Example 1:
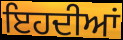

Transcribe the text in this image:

ਇਹਦੀਆਂ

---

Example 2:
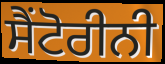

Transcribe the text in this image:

ਸੈਂਟੋਰੀਨੀ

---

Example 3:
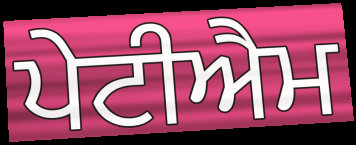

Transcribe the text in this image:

ਪੇਟੀਐਮ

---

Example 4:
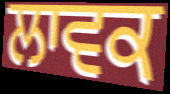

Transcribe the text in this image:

ਲਾਵਕ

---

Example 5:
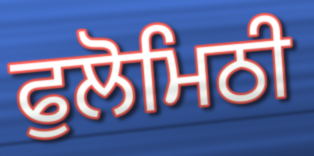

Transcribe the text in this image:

ਫੁਲੋਮਿਠੀ